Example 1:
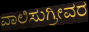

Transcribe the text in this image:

ವಾಲಿಸುಗ್ರೀವರ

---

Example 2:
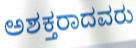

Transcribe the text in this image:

ಅಶಕ್ತರಾದವರು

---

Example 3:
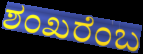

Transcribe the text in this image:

ಶಂಖರೆಂಬ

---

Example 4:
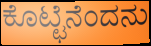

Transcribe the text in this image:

ಕೊಟ್ಟೆನೆಂದನು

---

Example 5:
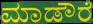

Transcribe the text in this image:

ಮಾಡೌರೆ